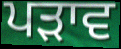
ਪੜਾਵ